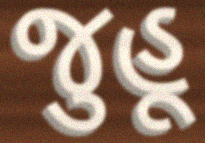
જુહૂ